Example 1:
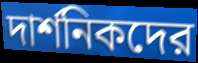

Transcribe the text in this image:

দার্শনিকদের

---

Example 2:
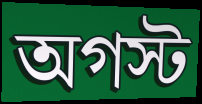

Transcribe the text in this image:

অগস্ট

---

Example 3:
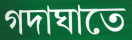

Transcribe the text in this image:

গদাঘাতে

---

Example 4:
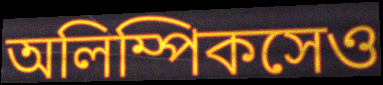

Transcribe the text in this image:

অলিম্পিকসেও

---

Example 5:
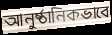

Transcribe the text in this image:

আনুষ্ঠানিকভাবে